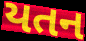
યતન